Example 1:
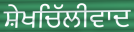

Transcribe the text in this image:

ਸ਼ੇਖਚਿੱਲੀਵਾਦ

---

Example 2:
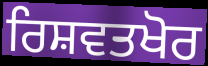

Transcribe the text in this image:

ਰਿਸ਼ਵਤਖੋਰ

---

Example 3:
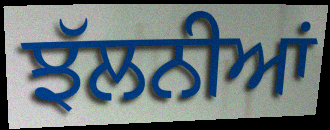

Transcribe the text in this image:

ਝੱਲਨੀਆਂ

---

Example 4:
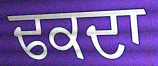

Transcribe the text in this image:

ਢਕਦਾ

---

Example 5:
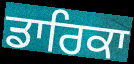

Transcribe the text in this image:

ਡਾਰਿਕਾ